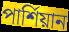
পার্শিয়ান